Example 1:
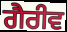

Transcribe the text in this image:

ਗੈਰੀਵ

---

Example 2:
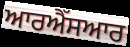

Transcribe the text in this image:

ਆਰਐੱਸਆਰ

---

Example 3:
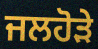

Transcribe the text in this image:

ਜਲਹੋੜੇ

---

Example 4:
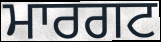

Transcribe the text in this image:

ਮਾਰਗਟ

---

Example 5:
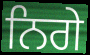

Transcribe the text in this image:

ਨਿਗੇ